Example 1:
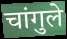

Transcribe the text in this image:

चांगुले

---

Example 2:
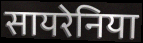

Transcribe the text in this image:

सायरेनिया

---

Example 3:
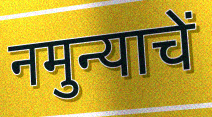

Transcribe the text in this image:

नमुन्याचें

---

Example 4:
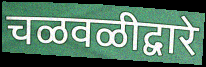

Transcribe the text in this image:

चळवळीद्वारे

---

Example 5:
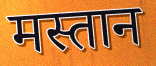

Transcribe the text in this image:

मस्तान